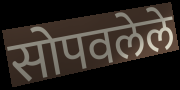
सोपवलेले